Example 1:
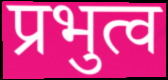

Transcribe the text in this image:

प्रभुत्व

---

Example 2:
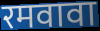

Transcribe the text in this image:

रमवावा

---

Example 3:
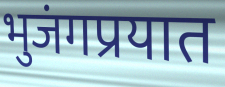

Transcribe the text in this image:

भुजंगप्रयात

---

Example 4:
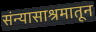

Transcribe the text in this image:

संन्यासाश्रमातून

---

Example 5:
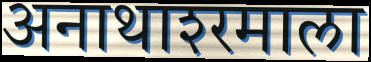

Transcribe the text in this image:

अनाथाश्रमाला